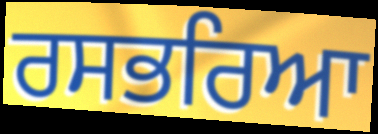
ਰਸਭਰਿਆ